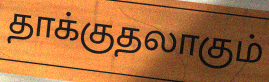
தாக்குதலாகும்